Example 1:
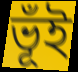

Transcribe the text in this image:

ভূঁই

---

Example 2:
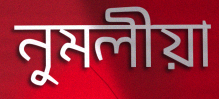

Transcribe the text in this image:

নুমলীয়া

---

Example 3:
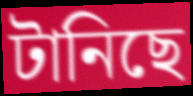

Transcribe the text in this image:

টানিছে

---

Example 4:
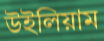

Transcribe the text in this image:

উইলিয়াম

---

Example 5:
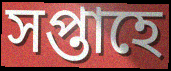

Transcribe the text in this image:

সপ্তাহে